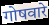
गोषवारे